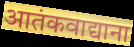
आतंकवाद्याना